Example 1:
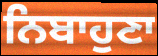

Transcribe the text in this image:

ਨਿਬਾਹੁਣਾ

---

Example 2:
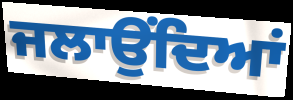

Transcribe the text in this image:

ਜਲਾਉਂਦਿਆਂ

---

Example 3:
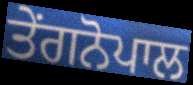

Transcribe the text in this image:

ਤੇਂਗਨੋਪਾਲ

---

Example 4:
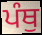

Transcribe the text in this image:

ਪੰਥੁ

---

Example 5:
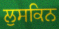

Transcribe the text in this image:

ਲੁਸਕਿਨ